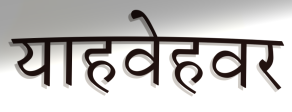
याहवेहवर